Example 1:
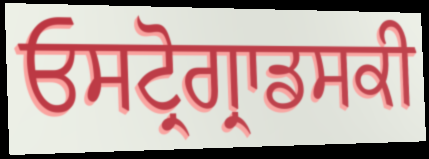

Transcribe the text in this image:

ਓਸਟ੍ਰੋਗ੍ਰਾਡਸਕੀ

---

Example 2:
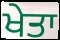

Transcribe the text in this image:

ਖੇਤਾ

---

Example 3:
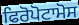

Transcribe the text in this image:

ਫਿਰੋਪੋਟਾਮੋਸ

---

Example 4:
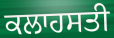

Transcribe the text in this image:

ਕਲਾਹਸਤੀ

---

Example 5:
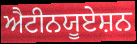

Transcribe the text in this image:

ਐਟੀਨਯੂਏਸ਼ਨ